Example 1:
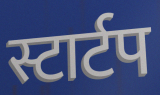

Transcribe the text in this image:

स्टार्टप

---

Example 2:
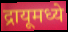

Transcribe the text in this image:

द्रायूमध्ये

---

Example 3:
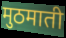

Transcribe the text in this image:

मुठमाती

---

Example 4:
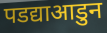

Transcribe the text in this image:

पडद्याआडुन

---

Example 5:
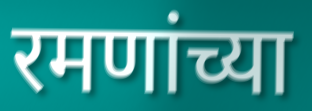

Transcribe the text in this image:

रमणांच्या